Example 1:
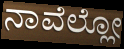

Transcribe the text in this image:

ನಾವೆಲ್ಲೋ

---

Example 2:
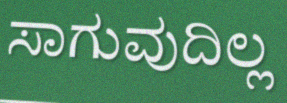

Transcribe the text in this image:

ಸಾಗುವುದಿಲ್ಲ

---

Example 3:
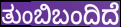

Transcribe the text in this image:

ತುಂಬಿಬಂದಿದೆ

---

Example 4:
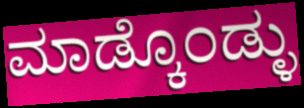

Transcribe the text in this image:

ಮಾಡ್ಕೊಂಡ್ಳು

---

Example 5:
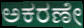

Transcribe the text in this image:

ಅಕರಣೇ